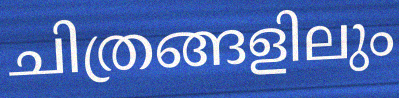
ചിത്രങ്ങളിലും